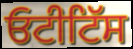
ਓਟੀਟਿੱਸ